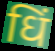
धिं